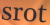
srot